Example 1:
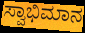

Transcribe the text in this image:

ಸ್ವಾಭಿಮಾನ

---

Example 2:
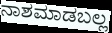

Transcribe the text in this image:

ನಾಶಮಾಡಬಲ್ಲ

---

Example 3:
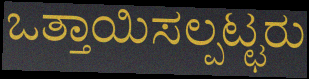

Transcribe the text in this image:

ಒತ್ತಾಯಿಸಲ್ಪಟ್ಟರು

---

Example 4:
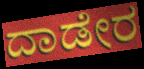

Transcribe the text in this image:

ದಾಡೇರ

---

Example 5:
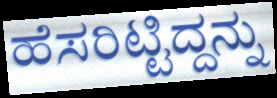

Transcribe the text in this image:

ಹೆಸರಿಟ್ಟಿದ್ದನ್ನು